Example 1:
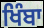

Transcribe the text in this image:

ਖਿੰਬਾ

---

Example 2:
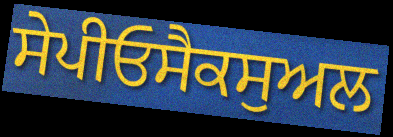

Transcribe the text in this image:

ਸੇਪੀਓਸੈਕਸੁਅਲ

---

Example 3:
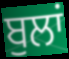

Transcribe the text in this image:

ਬੁਲਾਂ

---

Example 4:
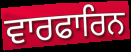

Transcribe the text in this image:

ਵਾਰਫਾਰਿਨ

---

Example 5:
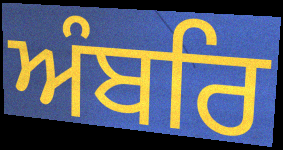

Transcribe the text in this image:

ਅੰਬਰਿ